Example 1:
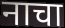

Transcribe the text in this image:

नाचा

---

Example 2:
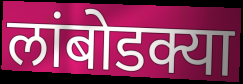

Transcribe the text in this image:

लांबोडक्या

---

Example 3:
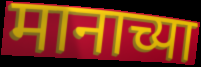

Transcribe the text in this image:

मानाच्या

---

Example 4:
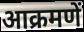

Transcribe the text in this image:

आक्रमणें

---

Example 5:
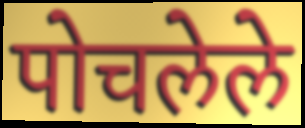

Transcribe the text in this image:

पोचलेले